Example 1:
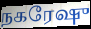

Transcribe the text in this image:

நகரேஷு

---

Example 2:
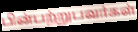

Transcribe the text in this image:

பின்பற்றுபவர்கள்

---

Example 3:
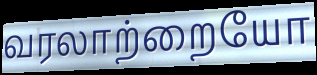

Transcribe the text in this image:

வரலாற்றையோ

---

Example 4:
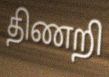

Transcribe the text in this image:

திணறி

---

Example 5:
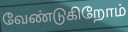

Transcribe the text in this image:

வேண்டுகிறோம்